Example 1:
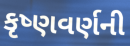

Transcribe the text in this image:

કૃષ્ણવર્ણની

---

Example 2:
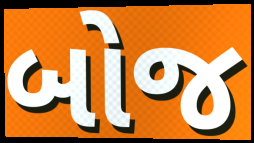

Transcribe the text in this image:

બોજ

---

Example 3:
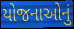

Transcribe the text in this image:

યોજનાઓનું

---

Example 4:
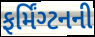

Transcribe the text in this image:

ફર્મિંગ્ટનની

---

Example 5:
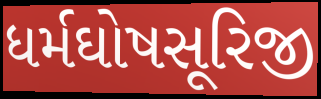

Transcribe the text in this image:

ધર્મઘોષસૂરિજી